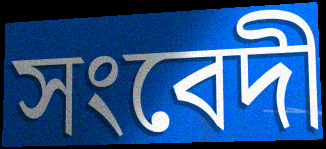
সংবেদী